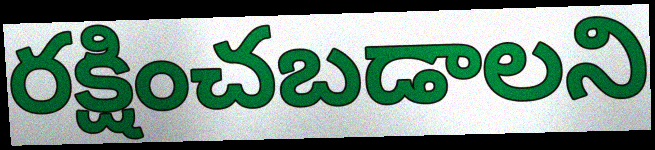
రక్షించబడాలని